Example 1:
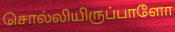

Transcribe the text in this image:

சொல்லியிருப்பாளோ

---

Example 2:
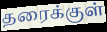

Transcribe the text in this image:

தரைக்குள்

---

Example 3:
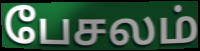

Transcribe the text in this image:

பேசலம்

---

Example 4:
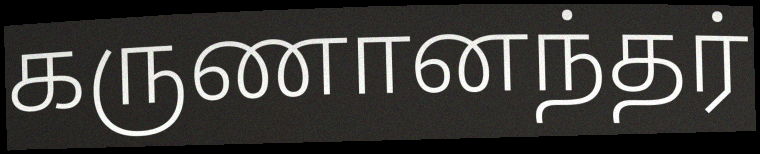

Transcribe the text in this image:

கருணானந்தர்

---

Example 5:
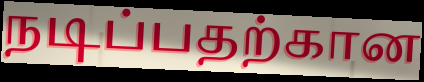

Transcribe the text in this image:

நடிப்பதற்கான